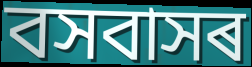
বসবাসৰ